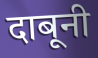
दाबूनी